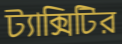
ট্যাক্সিটির